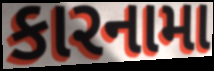
કારનામા